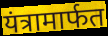
यंत्रामार्फत